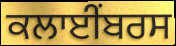
ਕਲਾਈਂਬਰਸ